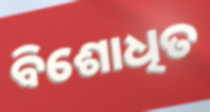
ବିଶୋଧିତ